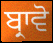
ਬ੍ਰਾਵੋ